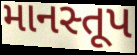
માનસ્તૂપ